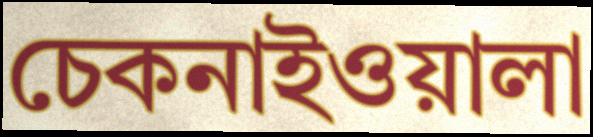
চেকনাইওয়ালা